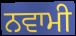
ਨਵਾਮੀ